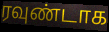
ரவுண்டாக